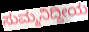
ಸುಮ್ಮನಿದ್ದೀಯ